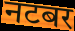
नटबर